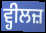
ਵ੍ਹੀਲਜ਼